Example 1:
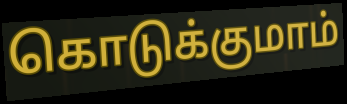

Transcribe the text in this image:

கொடுக்குமாம்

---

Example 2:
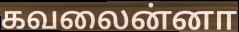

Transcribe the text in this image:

கவலைன்னா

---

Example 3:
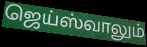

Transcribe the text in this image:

ஜெய்ஸ்வாலும்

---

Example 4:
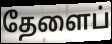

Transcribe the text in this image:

தேளைப்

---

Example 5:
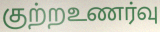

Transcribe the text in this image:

குற்றஉணர்வு